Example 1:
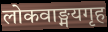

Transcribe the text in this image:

लोकवाङ्मयगृह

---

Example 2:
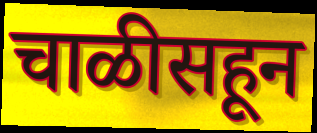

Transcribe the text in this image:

चाळीसहून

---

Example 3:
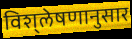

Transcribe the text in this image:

विश्लेषणानुसार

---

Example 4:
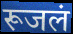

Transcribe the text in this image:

रूजलं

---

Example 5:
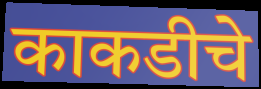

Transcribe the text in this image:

काकडीचे